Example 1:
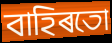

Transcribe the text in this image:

বাহিৰতো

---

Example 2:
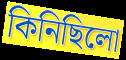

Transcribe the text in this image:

কিনিছিলো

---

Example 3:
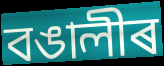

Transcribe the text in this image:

বঙালীৰ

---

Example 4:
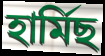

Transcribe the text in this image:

হাৰ্মিছ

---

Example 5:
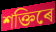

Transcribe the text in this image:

শক্তিৰে